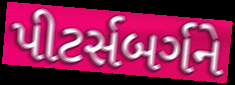
પીટર્સબર્ગને